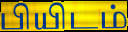
பியிடம்